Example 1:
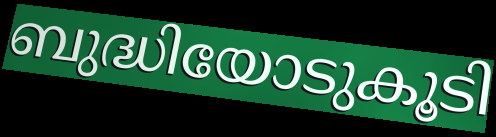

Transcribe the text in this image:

ബുദ്ധിയോടുകൂടി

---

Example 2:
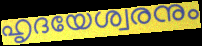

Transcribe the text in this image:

ഹൃദയേശ്വരനും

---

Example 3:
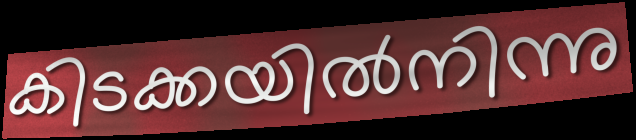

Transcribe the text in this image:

കിടക്കയിൽനിന്നു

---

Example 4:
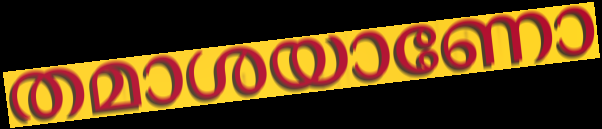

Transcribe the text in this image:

തമാശയാണോ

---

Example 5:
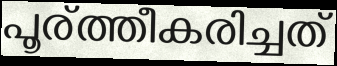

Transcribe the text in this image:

പൂര്ത്തീകരിച്ചത്